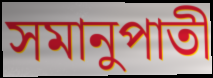
সমানুপাতী